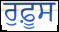
ਰੁਫ਼ੂਸ